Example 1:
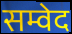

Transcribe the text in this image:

सम्वेद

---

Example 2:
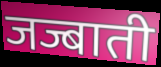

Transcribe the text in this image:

जज्‍बाती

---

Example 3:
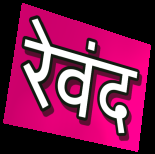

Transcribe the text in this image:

रेवंद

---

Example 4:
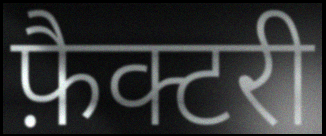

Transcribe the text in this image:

फ़ैक्टरी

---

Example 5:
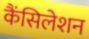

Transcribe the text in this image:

कैंसिलेशन